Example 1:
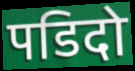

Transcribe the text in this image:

पडिदो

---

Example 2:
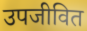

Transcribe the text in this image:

उपजीवित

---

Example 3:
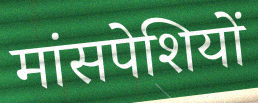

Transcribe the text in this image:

मांसपेशियों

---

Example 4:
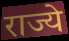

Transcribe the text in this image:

राज्ये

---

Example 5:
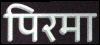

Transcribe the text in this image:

पिरमा